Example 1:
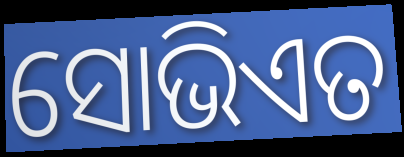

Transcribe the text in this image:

ସୋଭିଏତ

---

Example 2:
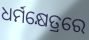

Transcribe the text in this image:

ଧର୍ମକ୍ଷେତ୍ରରେ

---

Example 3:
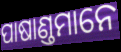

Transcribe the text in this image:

ପାଷାଣ୍ଡମାନେ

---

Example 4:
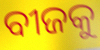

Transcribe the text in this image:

ବୀଜକୁ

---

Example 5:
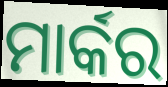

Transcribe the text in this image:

ମାର୍କର